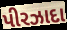
પીરઝાદા